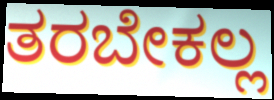
ತರಬೇಕಲ್ಲ